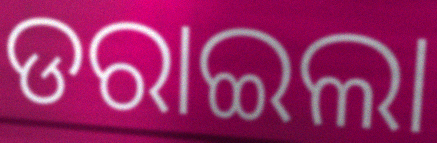
ଡରାଇଲା